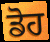
ਡੋਹ